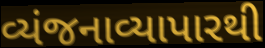
વ્યંજનાવ્યાપારથી